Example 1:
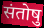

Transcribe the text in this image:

संतोषु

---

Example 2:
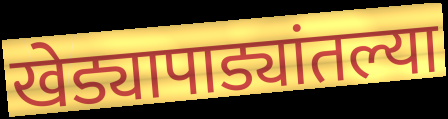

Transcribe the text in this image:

खेड्यापाड्यांतल्या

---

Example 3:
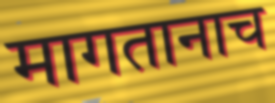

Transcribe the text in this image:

मागतानाच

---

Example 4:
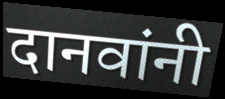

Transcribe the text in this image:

दानवांनी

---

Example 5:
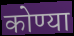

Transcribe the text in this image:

कोण्या